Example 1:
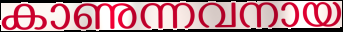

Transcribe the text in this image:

കാണുന്നവനായ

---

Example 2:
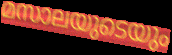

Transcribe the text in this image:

മസാലയുടെയും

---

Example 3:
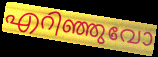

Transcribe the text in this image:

എറിഞ്ഞുവോ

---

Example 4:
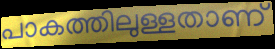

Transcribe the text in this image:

പാകത്തിലുള്ളതാണ്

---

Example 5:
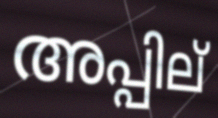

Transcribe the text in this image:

അപ്പില്